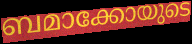
ബമാക്കോയുടെ